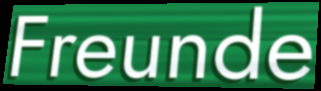
Freunde